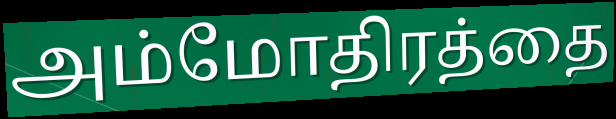
அம்மோதிரத்தை